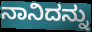
ನಾನಿದನ್ನು